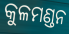
କୁଳମଣ୍ଡନ